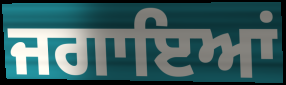
ਜਗਾਇਆਂ